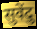
सुवेंदु